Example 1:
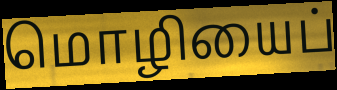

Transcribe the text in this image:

மொழியைப்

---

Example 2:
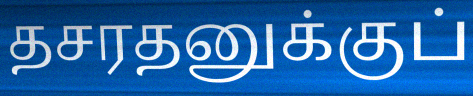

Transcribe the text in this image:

தசரதனுக்குப்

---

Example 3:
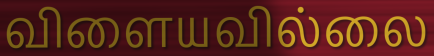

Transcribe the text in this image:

விளையவில்லை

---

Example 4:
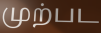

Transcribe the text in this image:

முற்பட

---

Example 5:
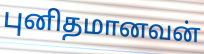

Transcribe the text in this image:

புனிதமானவன்